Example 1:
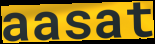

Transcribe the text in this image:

aasat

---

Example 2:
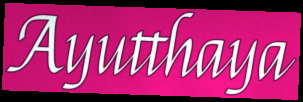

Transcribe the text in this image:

Ayutthaya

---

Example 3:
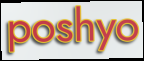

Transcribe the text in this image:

poshyo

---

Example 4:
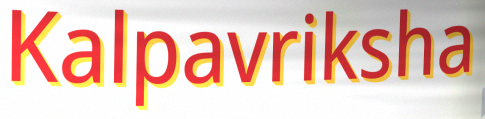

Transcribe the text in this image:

Kalpavriksha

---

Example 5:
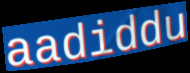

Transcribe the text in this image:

aadiddu